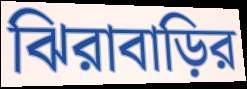
ঝিরাবাড়ির